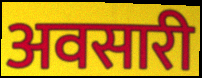
अवसारी